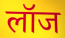
लॉज